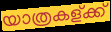
യാത്രകള്ക്ക്